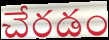
చేరడం